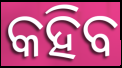
କହିବ